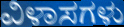
ವಿಳಾಸಗಳು